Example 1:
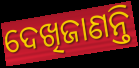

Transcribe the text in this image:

ଦେଖିଜାଣନ୍ତି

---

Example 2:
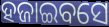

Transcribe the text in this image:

ହଜାଇବସେ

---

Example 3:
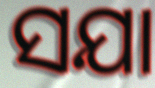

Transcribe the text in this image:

ସଯା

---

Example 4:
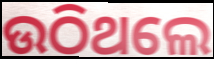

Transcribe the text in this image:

ଉଠିଥଲେ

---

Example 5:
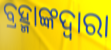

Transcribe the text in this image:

ବ୍ରହ୍ମାଙ୍କଦ୍ୱାରା